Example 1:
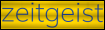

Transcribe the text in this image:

zeitgeist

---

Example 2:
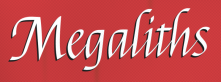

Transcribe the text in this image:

Megaliths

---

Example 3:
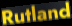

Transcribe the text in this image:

Rutland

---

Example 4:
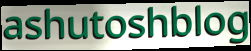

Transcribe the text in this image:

ashutoshblog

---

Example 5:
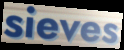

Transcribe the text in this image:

sieves